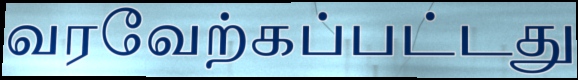
வரவேற்கப்பட்டது